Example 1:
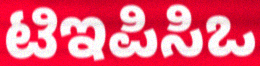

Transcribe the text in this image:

ಟಿಇಪಿಸಿಒ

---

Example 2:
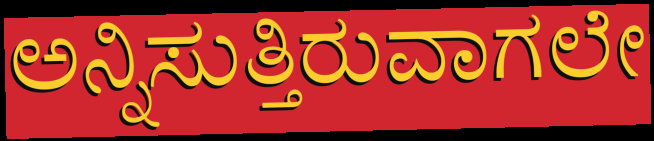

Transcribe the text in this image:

ಅನ್ನಿಸುತ್ತಿರುವಾಗಲೇ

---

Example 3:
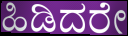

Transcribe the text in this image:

ಹಿಡಿದರೇ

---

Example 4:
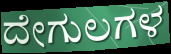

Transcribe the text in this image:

ದೇಗುಲಗಳ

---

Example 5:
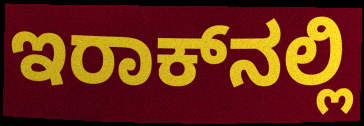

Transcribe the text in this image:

ಇರಾಕ್‍ನಲ್ಲಿ